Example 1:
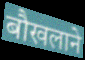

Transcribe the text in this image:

बौखलाने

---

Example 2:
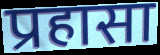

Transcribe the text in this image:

प्रहासा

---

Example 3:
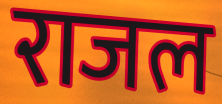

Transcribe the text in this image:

राजल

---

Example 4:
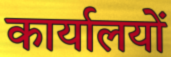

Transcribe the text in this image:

कार्यालयों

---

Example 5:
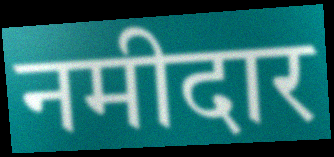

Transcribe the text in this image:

नमीदार